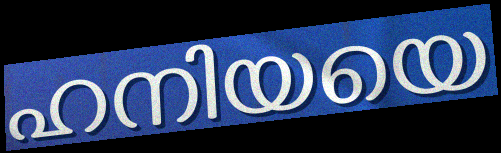
ഹനിയയെ